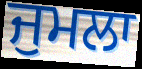
ਜੁਮਲਾ